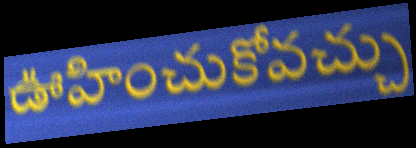
ఊహించుకోవచ్చు